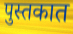
पुस्तकात